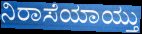
ನಿರಾಸೆಯಾಯ್ತು